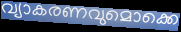
വ്യാകരണവുമൊക്കെ